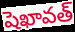
షెఖావత్